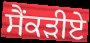
ਸੈਂਕੜੀਏ